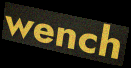
wench